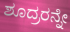
ಶೂದ್ರರನ್ನೇ